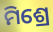
ମିଶ୍ରେ